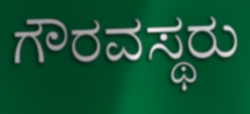
ಗೌರವಸ್ಥರು